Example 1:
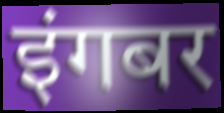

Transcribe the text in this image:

इंगबर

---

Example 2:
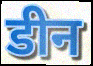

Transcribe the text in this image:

डीन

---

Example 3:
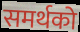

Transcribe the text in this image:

समर्थको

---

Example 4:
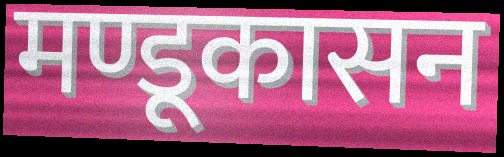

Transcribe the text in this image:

मण्डूकासन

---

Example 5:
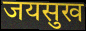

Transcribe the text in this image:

जयसुख